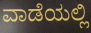
ವಾಡೆಯಲ್ಲಿ